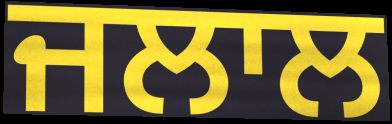
ਜਲਾਲ